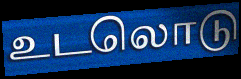
உடலொடு